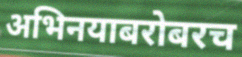
अभिनयाबरोबरच